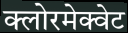
क्लोरमेक्वेट